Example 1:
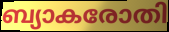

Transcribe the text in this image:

ബ്യാകരോതി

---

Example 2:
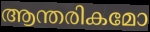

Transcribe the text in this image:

ആന്തരികമോ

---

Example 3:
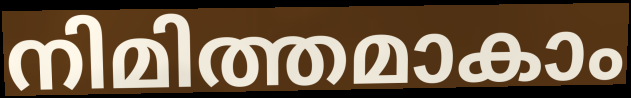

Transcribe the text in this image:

നിമിത്തമാകാം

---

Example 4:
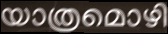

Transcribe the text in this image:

യാത്രമൊഴി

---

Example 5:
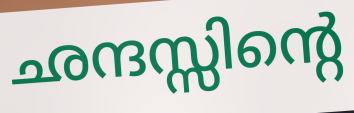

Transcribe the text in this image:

ഛന്ദസ്സിന്റെ